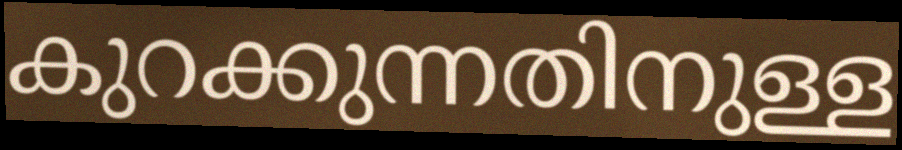
കുറക്കുന്നതിനുള്ള